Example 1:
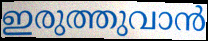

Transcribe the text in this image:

ഇരുത്തുവാൻ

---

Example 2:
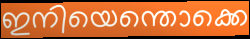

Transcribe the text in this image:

ഇനിയെന്തൊക്കെ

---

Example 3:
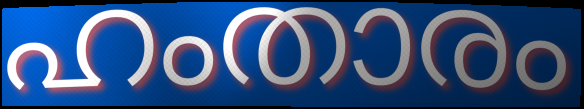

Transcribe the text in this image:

ഹംതാരം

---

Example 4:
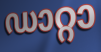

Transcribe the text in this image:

ഡാറ്റാ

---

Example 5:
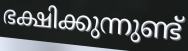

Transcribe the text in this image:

ഭക്ഷിക്കുന്നുണ്ട്